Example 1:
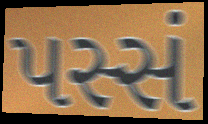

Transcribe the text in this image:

પસ્સં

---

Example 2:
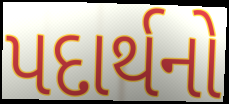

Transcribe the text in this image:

પદાર્થનો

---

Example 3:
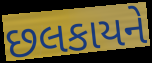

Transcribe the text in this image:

છલકાયને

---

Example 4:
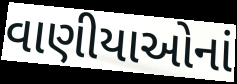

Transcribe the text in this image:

વાણીયાઓનાં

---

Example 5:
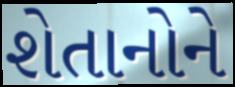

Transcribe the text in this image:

શેતાનોને